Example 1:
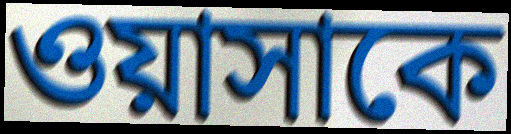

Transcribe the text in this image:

ওয়াসাকে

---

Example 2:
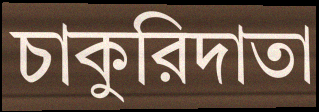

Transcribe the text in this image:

চাকুরিদাতা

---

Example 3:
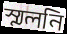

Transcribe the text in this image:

স্মলনি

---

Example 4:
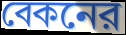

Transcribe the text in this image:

বেকনের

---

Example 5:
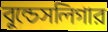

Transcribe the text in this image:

বুন্ডেসলিগার